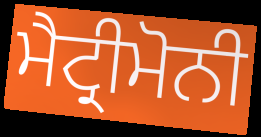
ਮੈਟ੍ਰੀਮੋਨੀ